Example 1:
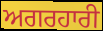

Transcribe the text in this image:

ਅਗਰਹਾਰੀ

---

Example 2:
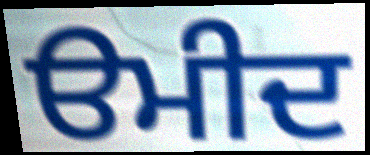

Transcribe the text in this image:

ੳਮੀਦ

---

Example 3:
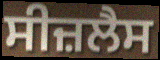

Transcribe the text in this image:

ਸੀਜ਼ਲੈਸ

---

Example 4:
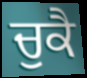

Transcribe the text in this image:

ਚੁਕੈ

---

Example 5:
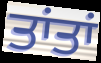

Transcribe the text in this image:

ਤਾਂਤਾਂ